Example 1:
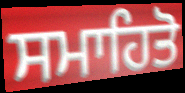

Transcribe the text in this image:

ਸਮਾਹਿਤੋ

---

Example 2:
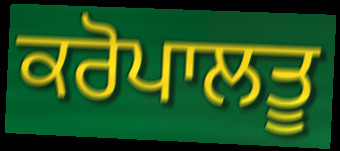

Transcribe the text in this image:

ਕਰੋਪਾਲਤੂ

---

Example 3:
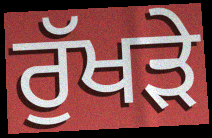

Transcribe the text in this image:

ਰੁੱਖੜੇ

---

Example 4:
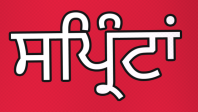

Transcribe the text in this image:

ਸਪ੍ਰਿੰਟਾਂ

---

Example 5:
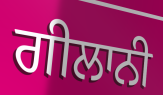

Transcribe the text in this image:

ਗੀਲਾਨੀ